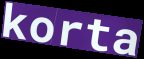
korta